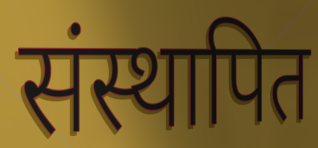
संस्थापित